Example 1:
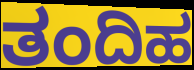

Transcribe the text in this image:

ತಂದಿಹ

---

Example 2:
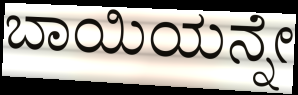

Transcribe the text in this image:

ಬಾಯಿಯನ್ನೇ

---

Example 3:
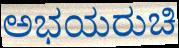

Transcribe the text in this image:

ಅಭಯರುಚಿ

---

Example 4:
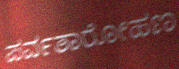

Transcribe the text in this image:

ಪರ್ವತಾರೋಹಣ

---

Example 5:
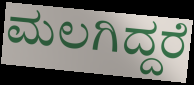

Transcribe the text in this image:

ಮಲಗಿದ್ದರೆ